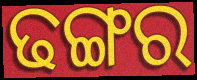
ଢଙ୍ଗର